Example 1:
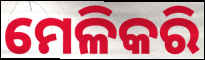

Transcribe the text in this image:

ମେଳିକରି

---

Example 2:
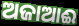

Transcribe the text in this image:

ଅଜାଆଈ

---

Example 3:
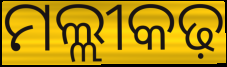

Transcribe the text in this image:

ମଲ୍ଲୀକଢ଼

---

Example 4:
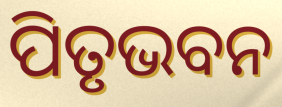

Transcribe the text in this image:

ପିତୃଭବନ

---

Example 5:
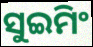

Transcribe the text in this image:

ସୁଇମିଂ